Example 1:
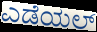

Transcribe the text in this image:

ಎಡೆಯಲ್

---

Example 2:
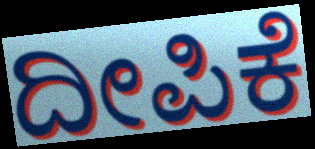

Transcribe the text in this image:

ದೀಪಿಕೆ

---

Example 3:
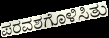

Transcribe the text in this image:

ಪರವಶಗೊಳಿಸಿತು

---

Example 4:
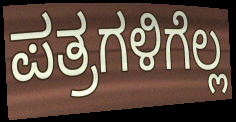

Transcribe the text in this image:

ಪತ್ರಗಳಿಗೆಲ್ಲ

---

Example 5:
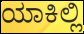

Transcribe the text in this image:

ಯಾಕಿಲ್ಲಿ